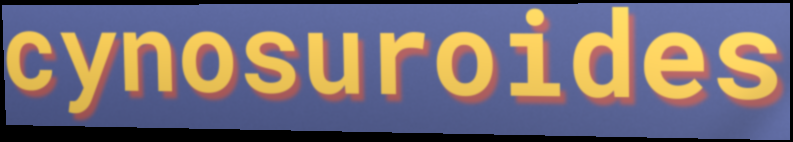
cynosuroides